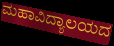
ಮಹಾವಿದ್ಯಾಲಯದ